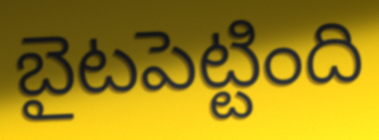
బైటపెట్టింది